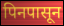
पिनपासून